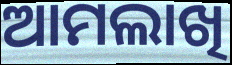
ଆମଲାଖି